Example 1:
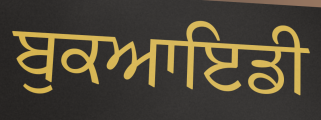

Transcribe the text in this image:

ਬੁਕਆਇਡੀ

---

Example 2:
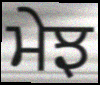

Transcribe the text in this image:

ਮੇਝ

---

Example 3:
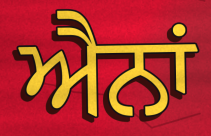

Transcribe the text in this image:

ਐਨਾਂ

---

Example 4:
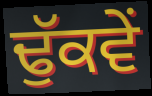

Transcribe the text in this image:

ਢੁੱਕਵੇਂ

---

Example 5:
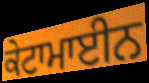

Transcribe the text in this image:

ਕੇਟਾਮਾਈਨ